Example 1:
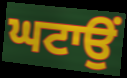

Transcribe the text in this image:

ਘਟਾਉਂ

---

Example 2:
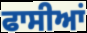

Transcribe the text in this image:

ਫਾਸੀਆਂ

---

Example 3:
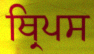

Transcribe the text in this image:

ਥ੍ਰਿਪਸ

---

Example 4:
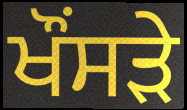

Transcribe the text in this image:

ਖੌਂਸੜੇ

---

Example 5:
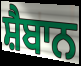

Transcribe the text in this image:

ਸ਼ੈਬਾਨ